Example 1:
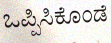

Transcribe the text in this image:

ಒಪ್ಪಿಸಿಕೊಂಡೆ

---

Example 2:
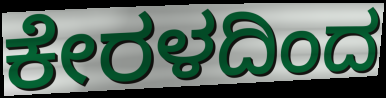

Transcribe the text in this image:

ಕೇರಳದಿಂದ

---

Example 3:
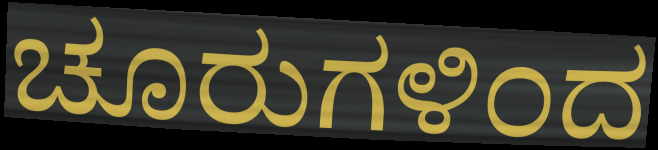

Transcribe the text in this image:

ಚೂರುಗಳಿಂದ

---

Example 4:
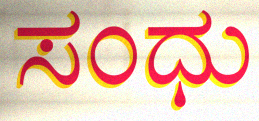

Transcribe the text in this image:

ಸಂಧು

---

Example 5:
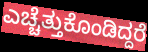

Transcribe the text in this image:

ಎಚ್ಚೆತ್ತುಕೊಂಡಿದ್ದರೆ